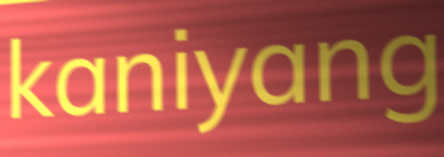
kaniyang